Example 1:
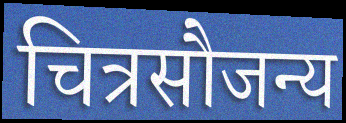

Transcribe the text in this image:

चित्रसौजन्य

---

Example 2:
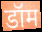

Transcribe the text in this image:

डॉम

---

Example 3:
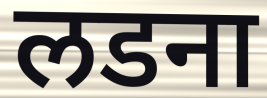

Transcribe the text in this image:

लडना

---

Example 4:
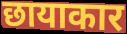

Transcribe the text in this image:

छायाकार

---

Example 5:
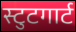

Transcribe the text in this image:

स्टुटगार्ट